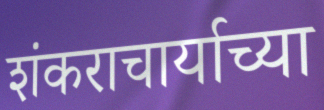
शंकराचार्याच्या